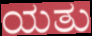
ಯತು